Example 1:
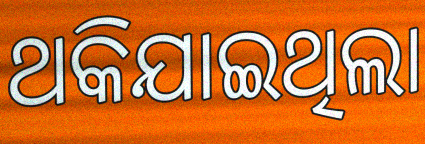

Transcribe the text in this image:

ଥକିଯାଇଥିଲା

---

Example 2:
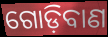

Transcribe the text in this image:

ଗୋଡ଼ିବାଣ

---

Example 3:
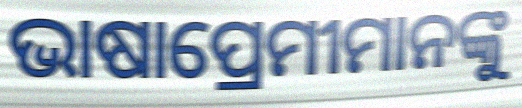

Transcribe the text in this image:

ଭାଷାପ୍ରେମୀମାନଙ୍କୁ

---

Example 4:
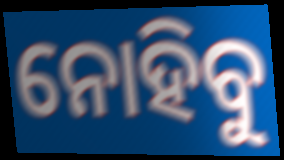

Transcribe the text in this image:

ନୋହିବୁ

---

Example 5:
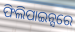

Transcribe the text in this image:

ଫିଲିପାଇନ୍ସରେ